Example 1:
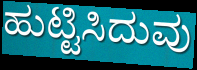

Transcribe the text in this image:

ಹುಟ್ಟಿಸಿದುವು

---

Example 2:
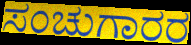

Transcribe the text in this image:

ಸಂಚುಗಾರರ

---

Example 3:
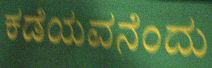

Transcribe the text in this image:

ಕಡೆಯವನೆಂದು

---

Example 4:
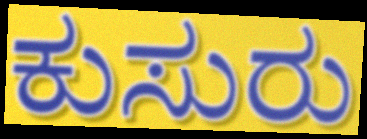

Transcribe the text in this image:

ಕುಸುರು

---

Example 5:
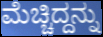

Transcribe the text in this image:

ಮೆಚ್ಚಿದ್ದನ್ನು